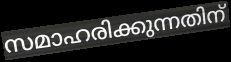
സമാഹരിക്കുന്നതിന്